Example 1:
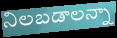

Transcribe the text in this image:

నిలబడాలన్నా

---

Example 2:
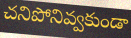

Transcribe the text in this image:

చనిపోనివ్వకుండా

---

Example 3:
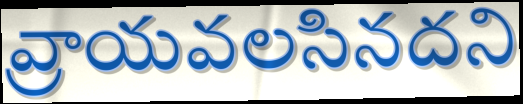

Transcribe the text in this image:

వ్రాయవలసినదని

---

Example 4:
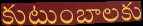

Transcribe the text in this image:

కుటుంబాలకు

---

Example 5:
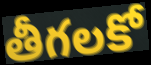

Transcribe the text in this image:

తీగలకో